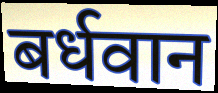
बर्धवान